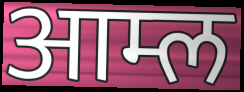
आम्‍ल